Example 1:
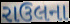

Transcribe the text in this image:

રાઉલના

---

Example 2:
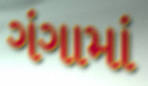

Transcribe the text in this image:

ગંગામાં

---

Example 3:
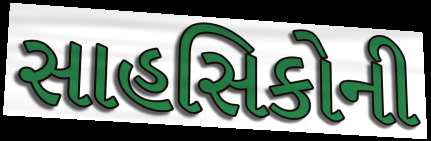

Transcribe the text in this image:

સાહસિકોની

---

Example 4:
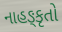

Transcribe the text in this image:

નાહઙ્કૃતો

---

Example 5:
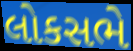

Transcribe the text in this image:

લોકસભે